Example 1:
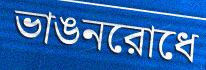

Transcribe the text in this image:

ভাঙনরোধে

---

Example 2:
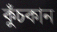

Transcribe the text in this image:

কুঁচকান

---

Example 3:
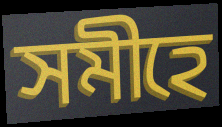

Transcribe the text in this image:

সমীহে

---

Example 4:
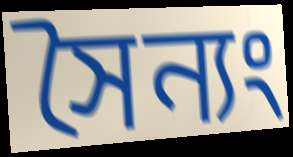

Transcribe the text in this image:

সৈন্যং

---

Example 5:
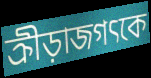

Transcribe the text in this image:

ক্রীড়াজগৎকে